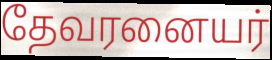
தேவரனையர்